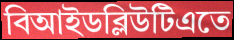
বিআইডব্লিউটিএতে